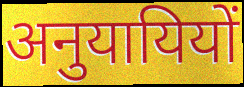
अनुयायियों